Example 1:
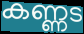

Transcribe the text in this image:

കണ്ണട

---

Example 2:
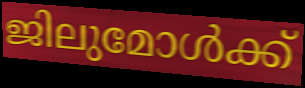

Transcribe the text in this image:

ജിലുമോൾക്ക്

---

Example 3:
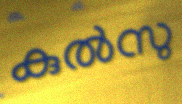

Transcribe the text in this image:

കുൽസു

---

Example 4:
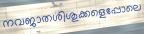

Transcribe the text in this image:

നവജാതശിശുക്കളെപ്പോലെ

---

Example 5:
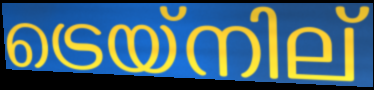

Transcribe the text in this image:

ട്രെയ്നില്